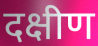
दक्षीण